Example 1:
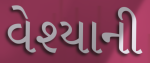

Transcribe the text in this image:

વેશ્યાની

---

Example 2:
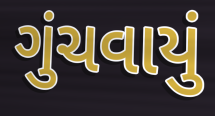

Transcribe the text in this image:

ગુંચવાયું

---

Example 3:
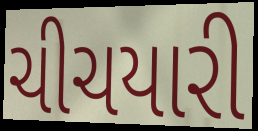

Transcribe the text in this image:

ચીચયારી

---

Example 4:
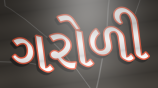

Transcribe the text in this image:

ગરોળી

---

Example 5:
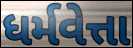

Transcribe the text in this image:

ધર્મવેત્તા